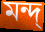
মন্দ্